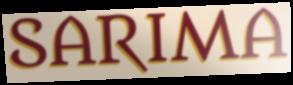
SARIMA